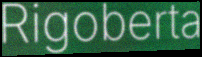
Rigoberta